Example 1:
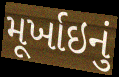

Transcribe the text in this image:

મૂર્ખાઇનું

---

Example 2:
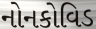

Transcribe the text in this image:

નોનકોવિડ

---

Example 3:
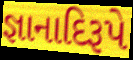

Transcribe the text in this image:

જ્ઞાનાદિરૂપે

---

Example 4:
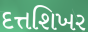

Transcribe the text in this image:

દત્તશિખર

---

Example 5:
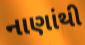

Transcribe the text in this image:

નાણાંથી